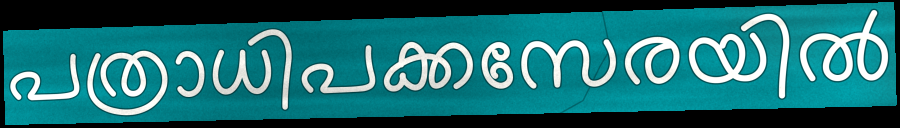
പത്രാധിപക്കസേരയിൽ